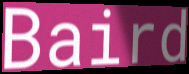
Baird